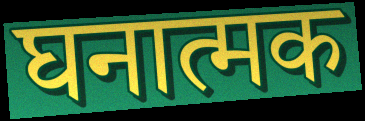
घनात्मक